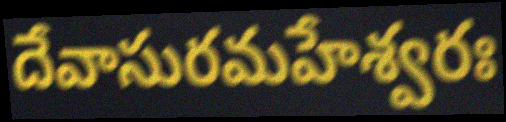
దేవాసురమహేశ్వరః